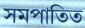
সমপাতিত